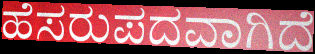
ಹೆಸರುಪದವಾಗಿದೆ